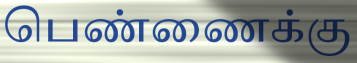
பெண்ணைக்கு